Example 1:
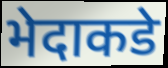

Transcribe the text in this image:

भेदाकडे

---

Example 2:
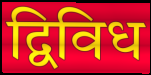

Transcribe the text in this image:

द्विविध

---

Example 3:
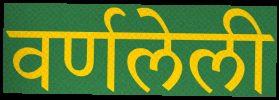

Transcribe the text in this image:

वर्णलेली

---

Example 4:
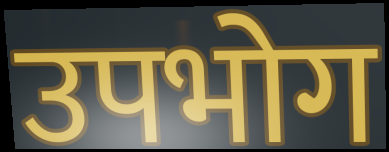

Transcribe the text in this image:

उपभोग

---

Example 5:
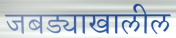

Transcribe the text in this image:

जबड्याखालील